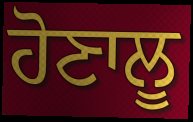
ਹੋਣਾਲੂ